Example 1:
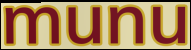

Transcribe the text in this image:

munu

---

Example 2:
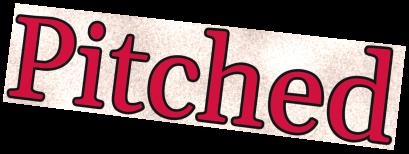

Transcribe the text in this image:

Pitched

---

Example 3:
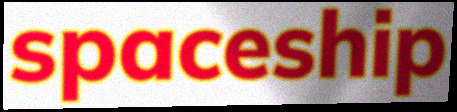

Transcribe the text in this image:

spaceship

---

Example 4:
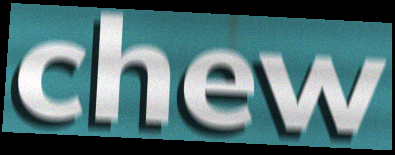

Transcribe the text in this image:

chew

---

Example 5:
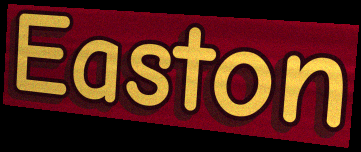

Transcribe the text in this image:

Easton